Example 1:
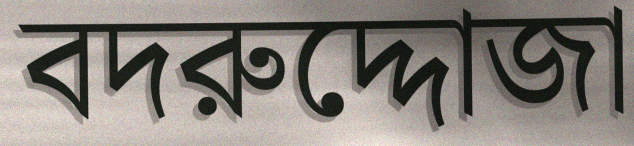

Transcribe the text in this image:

বদরুদ্দোজা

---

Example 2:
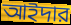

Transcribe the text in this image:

আইদার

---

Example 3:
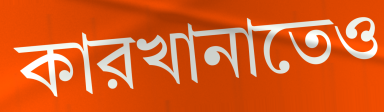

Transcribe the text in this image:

কারখানাতেও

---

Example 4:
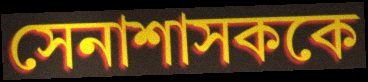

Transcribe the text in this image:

সেনাশাসককে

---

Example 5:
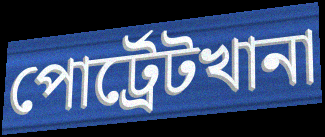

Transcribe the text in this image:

পোর্ট্রেটখানা